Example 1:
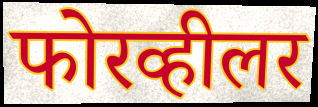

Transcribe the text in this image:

फोरव्हीलर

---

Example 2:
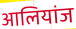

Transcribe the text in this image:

आलियांज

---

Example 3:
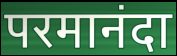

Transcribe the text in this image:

परमानंदा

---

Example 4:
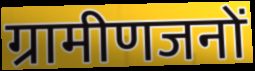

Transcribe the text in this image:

ग्रामीणजनों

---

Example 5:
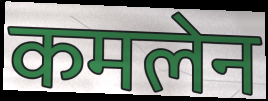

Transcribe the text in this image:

कमलेन